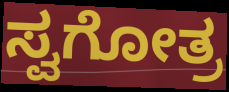
ಸ್ವಗೋತ್ರ